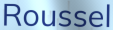
Roussel